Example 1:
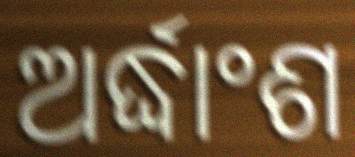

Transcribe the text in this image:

ଅର୍ଦ୍ଧାଂଶ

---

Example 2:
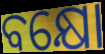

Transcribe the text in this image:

ବକ୍ଷୋ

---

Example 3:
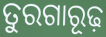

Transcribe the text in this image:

ତୁରଗାରୂଢ଼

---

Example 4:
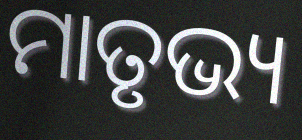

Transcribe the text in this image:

ମାତୃଭ୍ୟ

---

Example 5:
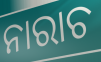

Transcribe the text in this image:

ନାରାଚ